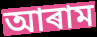
আৰাম